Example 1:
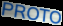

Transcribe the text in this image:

PROTO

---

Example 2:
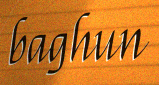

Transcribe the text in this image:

baghun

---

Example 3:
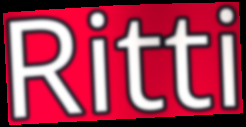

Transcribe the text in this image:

Ritti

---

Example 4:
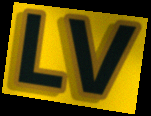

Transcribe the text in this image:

LV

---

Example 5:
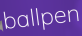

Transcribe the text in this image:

ballpen